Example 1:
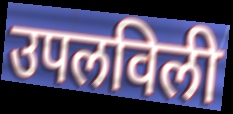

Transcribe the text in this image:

उपलविली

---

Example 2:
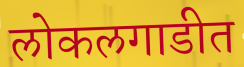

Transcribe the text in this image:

लोकलगाडीत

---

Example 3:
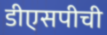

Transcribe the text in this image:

डीएसपीची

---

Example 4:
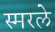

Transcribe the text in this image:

स्मरले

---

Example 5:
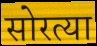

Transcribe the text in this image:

सोरत्या